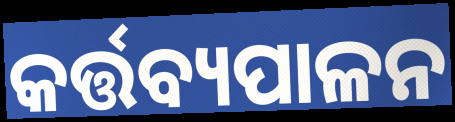
କର୍ତ୍ତବ୍ୟପାଳନ